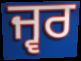
ਜ੍ਵਰ